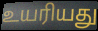
உயரியது